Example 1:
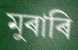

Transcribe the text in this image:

মুৰাৰি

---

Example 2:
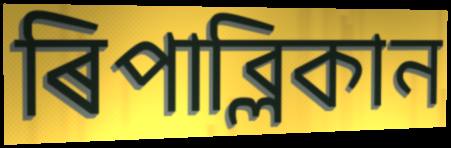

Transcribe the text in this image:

ৰিপাব্লিকান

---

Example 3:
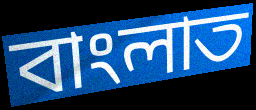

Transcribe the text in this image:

বাংলাত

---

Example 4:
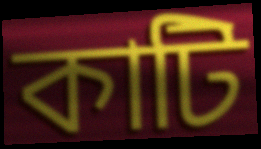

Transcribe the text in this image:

কাটি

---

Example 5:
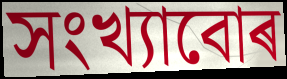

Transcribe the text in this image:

সংখ্যাবোৰ